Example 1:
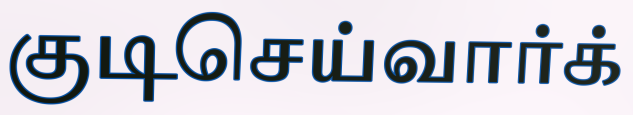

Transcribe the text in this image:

குடிசெய்வார்க்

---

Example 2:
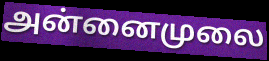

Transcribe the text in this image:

அன்னைமுலை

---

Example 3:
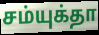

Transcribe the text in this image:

சம்யுக்தா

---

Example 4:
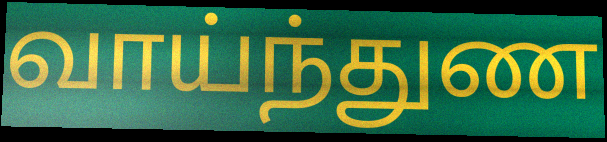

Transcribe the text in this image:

வாய்ந்துண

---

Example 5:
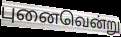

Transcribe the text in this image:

புனைவென்று